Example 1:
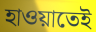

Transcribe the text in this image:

হাওয়াতেই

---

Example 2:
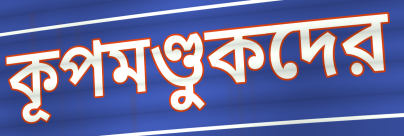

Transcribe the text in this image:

কূপমণ্ডুকদের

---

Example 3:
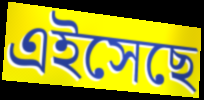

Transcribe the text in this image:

এইসেছে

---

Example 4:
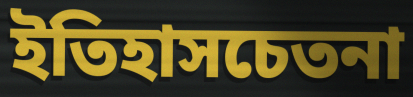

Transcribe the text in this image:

ইতিহাসচেতনা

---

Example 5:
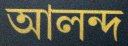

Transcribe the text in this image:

আলন্দ